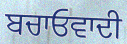
ਬਚਾਓਵਾਦੀ